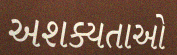
અશક્યતાઓ